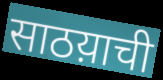
साठय़ाची